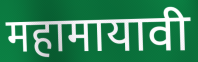
महामायावी